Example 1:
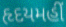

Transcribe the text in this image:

હૃદયમહીં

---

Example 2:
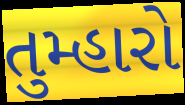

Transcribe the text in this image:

તુમ્હારો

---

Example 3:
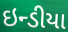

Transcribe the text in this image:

ઇન્ડીયા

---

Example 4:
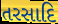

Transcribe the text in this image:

તરસાદિ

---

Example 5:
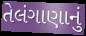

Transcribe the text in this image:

તેલંગાણાનું